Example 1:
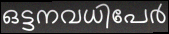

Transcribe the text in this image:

ഒട്ടനവധിപേർ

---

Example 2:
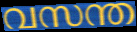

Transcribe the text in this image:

വസന്ത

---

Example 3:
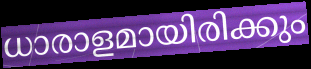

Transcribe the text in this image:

ധാരാളമായിരിക്കും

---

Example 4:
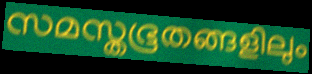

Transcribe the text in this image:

സമസ്തഭൂതങ്ങളിലും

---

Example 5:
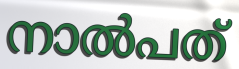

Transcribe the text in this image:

നാൽപത്